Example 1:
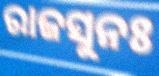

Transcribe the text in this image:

ରାଜସୁନଃ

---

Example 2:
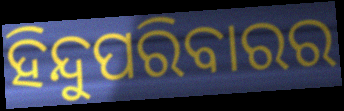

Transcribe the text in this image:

ହିନ୍ଦୁପରିବାରର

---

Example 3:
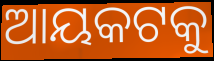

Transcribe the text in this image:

ଆୟକଟକୁ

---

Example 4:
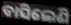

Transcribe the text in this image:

ବାସିଲେଣି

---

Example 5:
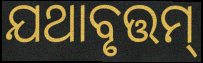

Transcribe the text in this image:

ଯଥାବୃତ୍ତମ୍